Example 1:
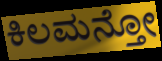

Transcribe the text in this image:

ಕಿಲಮನ್ತೋ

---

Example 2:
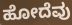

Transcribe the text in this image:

ಹೋದೆವು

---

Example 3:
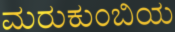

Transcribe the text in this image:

ಮರುಕುಂಬಿಯ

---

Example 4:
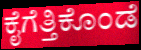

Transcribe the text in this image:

ಕೈಗೆತ್ತಿಕೊಂಡೆ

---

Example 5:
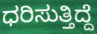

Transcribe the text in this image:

ಧರಿಸುತ್ತಿದ್ದೆ